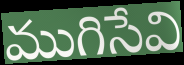
ముగిసేవి